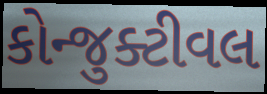
કોન્જુક્ટીવલ